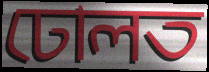
ঢোলত